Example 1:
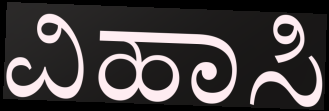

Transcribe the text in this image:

ವಿಹಾಸಿ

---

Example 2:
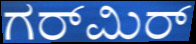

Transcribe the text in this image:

ಗರ್‌ಮಿರ್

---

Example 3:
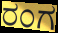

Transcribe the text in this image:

ರಂಗ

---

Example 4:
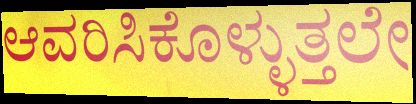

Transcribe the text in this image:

ಆವರಿಸಿಕೊಳ್ಳುತ್ತಲೇ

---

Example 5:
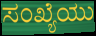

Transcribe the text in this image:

ಸಂಖ್ಯೆಯು